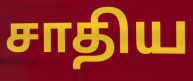
சாதிய